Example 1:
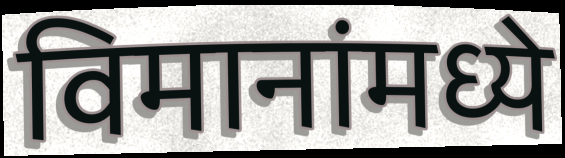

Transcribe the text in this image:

विमानांमध्ये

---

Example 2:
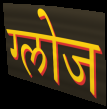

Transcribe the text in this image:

ग्लोज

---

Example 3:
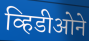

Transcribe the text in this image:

व्हिडीओने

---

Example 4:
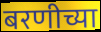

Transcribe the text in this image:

बरणीच्या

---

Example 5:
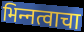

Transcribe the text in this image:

भिन्नत्वाचा